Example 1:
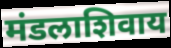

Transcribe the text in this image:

मंडलाशिवाय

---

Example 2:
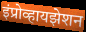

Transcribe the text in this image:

इंप्रोव्हायझेशन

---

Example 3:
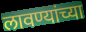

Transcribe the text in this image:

लावण्यांच्या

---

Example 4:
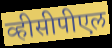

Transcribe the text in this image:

व्हीसीपीएल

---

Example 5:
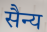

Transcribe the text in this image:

सैन्‍य